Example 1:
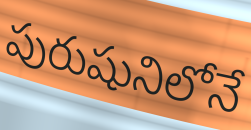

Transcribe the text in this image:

పురుషునిలోనే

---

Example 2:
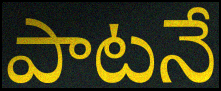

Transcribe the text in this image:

పాటనే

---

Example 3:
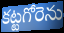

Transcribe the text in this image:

కట్టగోరెను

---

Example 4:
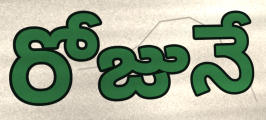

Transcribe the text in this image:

రోజునే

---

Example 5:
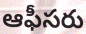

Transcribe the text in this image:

ఆఫీసరు